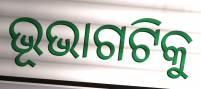
ଭୂଭାଗଟିକୁ